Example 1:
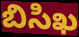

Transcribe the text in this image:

బిసిఖ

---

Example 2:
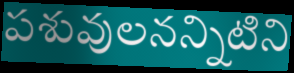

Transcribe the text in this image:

పశువులనన్నిటిని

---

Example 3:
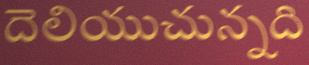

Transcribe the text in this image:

దెలియుచున్నది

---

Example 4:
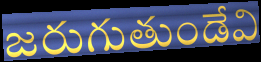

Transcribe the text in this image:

జరుగుతుండేవి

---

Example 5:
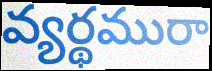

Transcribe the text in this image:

వ్యర్థమురా